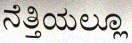
ನೆತ್ತಿಯಲ್ಲೂ